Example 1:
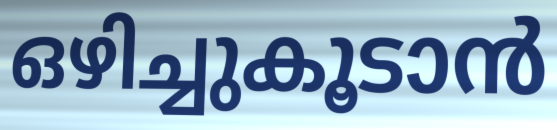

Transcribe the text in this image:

ഒഴിച്ചുകൂടാൻ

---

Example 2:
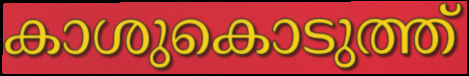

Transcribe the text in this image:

കാശുകൊടുത്ത്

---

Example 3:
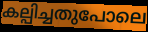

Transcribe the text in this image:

കല്പിച്ചതുപോലെ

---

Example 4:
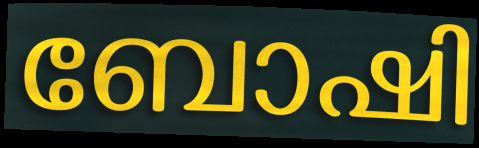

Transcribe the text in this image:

ബോഷി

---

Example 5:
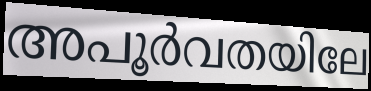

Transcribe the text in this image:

അപൂർവതയിലേ